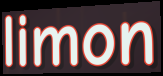
limon